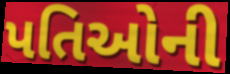
પતિઓની